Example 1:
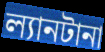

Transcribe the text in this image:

ল্যানটানা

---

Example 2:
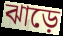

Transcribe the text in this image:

ঝাড়ে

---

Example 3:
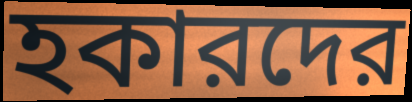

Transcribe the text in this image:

হকারদের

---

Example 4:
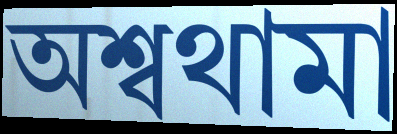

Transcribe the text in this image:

অশ্বথামা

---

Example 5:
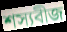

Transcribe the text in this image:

শস্যবীজ